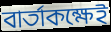
বার্তাকক্ষেই